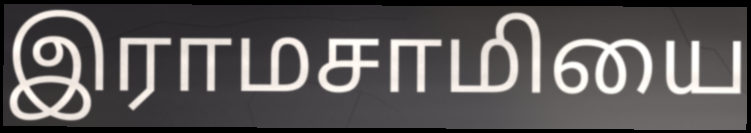
இராமசாமியை